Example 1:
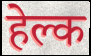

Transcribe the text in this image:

हेल्क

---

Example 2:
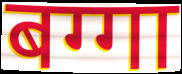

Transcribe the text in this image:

बग्गा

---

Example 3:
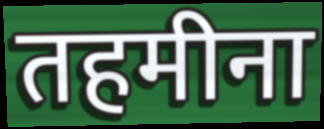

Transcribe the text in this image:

तहमीना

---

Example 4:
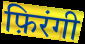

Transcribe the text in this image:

फ़िरंगी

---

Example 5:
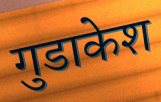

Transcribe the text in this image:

गुडाकेश